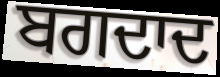
ਬਗਦਾਦ